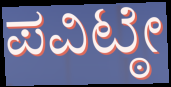
ಪವಿಟ್ಠೇ